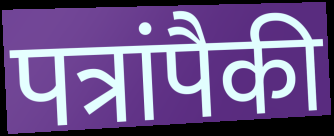
पत्रांपैकी